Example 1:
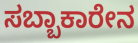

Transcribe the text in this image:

ಸಬ್ಬಾಕಾರೇನ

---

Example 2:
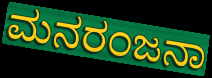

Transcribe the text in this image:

ಮನರಂಜನಾ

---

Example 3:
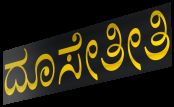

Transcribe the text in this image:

ದೂಸೇತೀತಿ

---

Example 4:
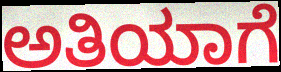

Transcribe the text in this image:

ಅತಿಯಾಗೆ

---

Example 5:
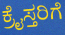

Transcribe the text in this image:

ಕ್ರೈಸ್ತರಿಗೆ